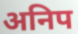
अनिप